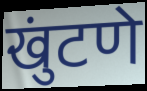
खुंटणे